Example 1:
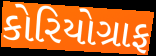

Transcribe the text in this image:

કોરિયોગ્રાફ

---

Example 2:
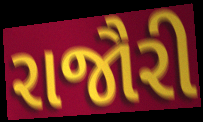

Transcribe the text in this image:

રાજૌરી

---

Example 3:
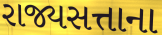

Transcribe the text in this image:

રાજ્યસત્તાના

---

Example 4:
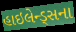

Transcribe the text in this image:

હાઇલેન્ડ્સના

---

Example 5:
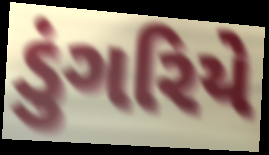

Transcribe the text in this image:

ડુંગરિયે